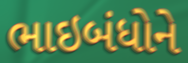
ભાઇબંધોને